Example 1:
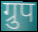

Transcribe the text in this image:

ग्रुप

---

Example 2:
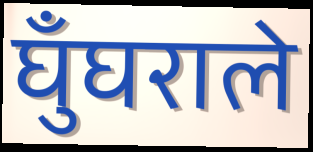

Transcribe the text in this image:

घुँघराले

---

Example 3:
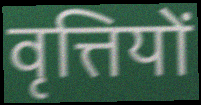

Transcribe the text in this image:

वृत्तियों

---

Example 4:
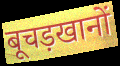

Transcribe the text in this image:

बूचड़खानों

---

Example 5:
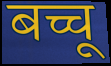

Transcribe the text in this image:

बच्चू